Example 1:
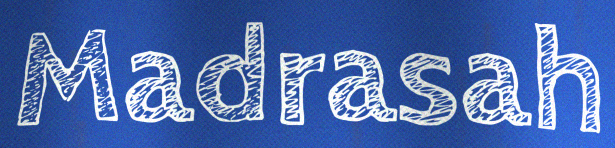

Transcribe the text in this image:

Madrasah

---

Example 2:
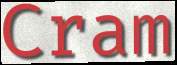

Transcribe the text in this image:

Cram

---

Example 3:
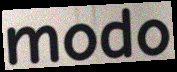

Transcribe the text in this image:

modo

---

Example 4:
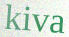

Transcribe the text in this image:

kiva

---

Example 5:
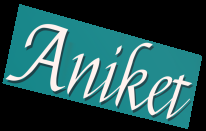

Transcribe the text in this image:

Aniket